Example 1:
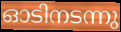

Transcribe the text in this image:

ഓടിനടന്നു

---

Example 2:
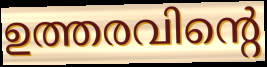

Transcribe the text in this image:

ഉത്തരവിന്റെ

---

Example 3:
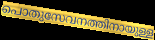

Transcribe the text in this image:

പൊതുസേവനത്തിനായുള്ള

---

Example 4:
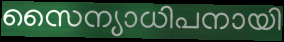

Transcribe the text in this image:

സൈന്യാധിപനായി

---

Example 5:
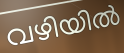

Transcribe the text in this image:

വഴിയിൽ